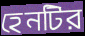
হেনটির